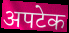
अपटेक